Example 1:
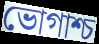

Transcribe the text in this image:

ভোগাশ্চ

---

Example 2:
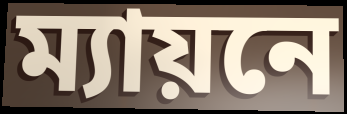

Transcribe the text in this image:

ম্যায়নে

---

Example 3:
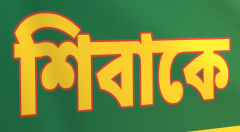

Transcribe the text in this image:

শিবাকে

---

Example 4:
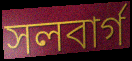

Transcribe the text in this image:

সলবার্গ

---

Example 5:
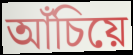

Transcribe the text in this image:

আঁচিয়ে